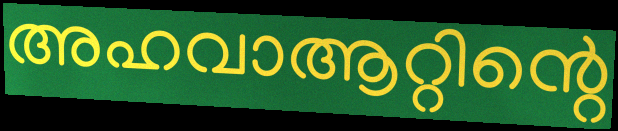
അഹവാആറ്റിന്റെ